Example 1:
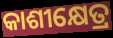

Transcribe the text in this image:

କାଶୀକ୍ଷେତ୍ର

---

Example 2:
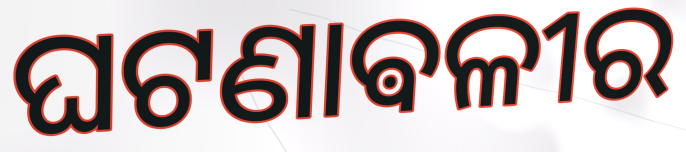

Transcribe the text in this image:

ଘଟଣାଵଳୀର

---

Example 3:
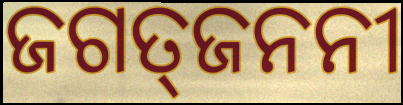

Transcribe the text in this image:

ଜଗତ୍‍ଜନନୀ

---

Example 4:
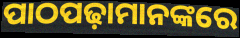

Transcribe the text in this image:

ପାଠପଢ଼ାମାନଙ୍କରେ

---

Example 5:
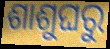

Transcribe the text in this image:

ଶାଶୁଘରୁ